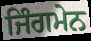
ਜਿੰਗਮੇਨ